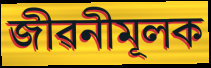
জীৱনীমূলক